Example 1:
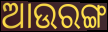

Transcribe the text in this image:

ଆଉରଙ୍ଗ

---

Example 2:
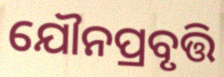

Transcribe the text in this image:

ଯୌନପ୍ରବୃତ୍ତି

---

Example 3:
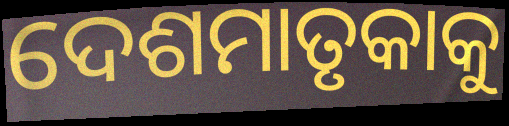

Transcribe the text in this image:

ଦେଶମାତୃକାକୁ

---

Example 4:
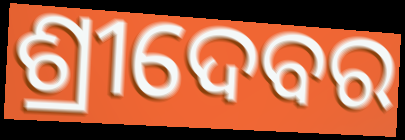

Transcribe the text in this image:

ଶ୍ରୀଦେବର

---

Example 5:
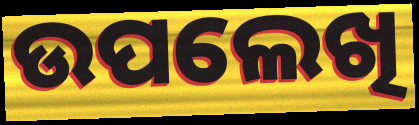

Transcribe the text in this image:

ଉପଲେଖି